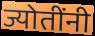
ज्योतींनी